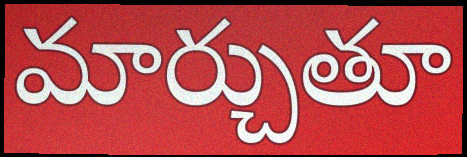
మార్చుతూ